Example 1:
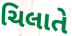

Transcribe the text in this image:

ચિલાતે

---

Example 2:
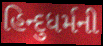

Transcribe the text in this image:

હિન્દુધર્મની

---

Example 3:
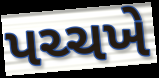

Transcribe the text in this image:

પચ્ચખે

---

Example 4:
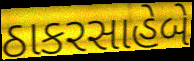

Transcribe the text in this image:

ઠાકરસાહેબે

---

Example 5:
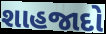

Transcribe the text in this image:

શાહજાદો